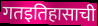
गतइतिहासाची